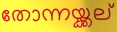
തോന്നയ്ക്കല്